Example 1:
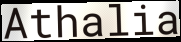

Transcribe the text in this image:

Athalia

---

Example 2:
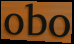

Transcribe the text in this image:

obo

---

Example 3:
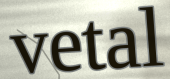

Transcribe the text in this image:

vetal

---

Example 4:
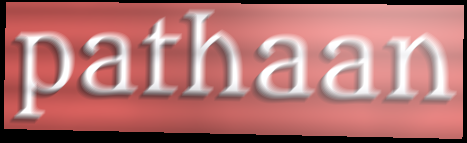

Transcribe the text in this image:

pathaan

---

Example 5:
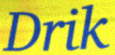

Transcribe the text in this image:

Drik